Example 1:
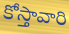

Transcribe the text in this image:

కోస్తావారి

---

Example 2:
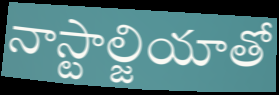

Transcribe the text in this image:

నాస్టాల్జియాతో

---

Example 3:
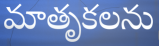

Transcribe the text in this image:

మాతృకలను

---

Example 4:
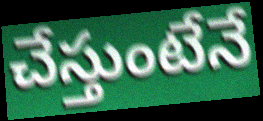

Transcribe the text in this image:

చేస్తుంటేనే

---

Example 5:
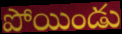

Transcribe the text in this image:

పోయిండు